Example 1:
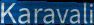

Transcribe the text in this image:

Karavali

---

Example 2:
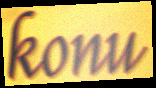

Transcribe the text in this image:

konu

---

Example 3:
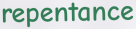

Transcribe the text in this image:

repentance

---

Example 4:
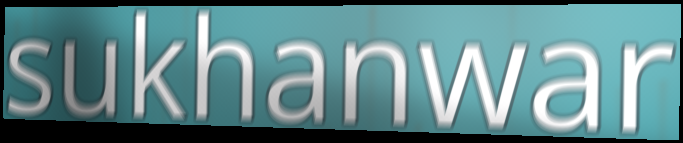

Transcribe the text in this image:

sukhanwar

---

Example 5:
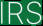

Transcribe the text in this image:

IRS